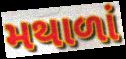
મથાળાં